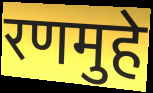
रणमुहे